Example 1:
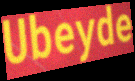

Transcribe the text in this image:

Ubeyde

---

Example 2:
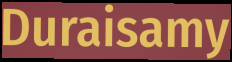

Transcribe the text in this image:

Duraisamy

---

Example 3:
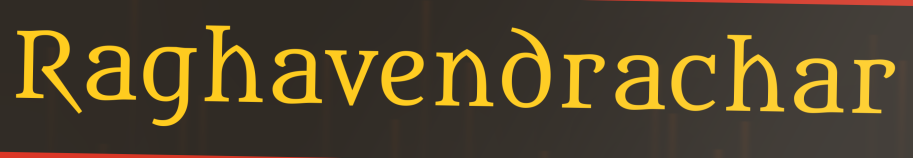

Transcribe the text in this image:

Raghavendrachar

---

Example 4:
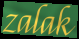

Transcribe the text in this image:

zalak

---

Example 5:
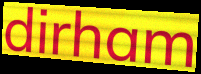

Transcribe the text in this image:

dirham